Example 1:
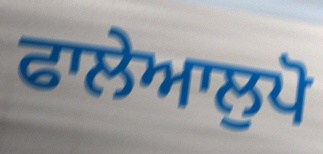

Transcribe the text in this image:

ਫਾਲੇਆਲੁਪੋ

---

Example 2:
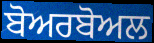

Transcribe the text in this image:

ਬੋਅਰਬੋਅਲ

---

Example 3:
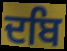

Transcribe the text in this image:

ਦਬਿ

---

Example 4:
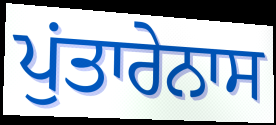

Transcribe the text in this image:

ਪੁਂਤਾਰੇਨਾਸ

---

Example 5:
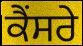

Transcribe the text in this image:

ਕੈਂਸਰੇ